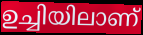
ഉച്ചിയിലാണ്